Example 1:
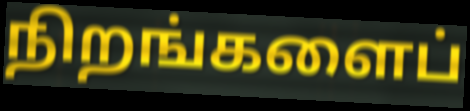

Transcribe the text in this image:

நிறங்களைப்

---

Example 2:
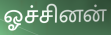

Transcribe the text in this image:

ஓச்சினன்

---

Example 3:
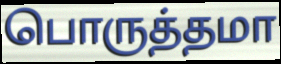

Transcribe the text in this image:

பொருத்தமா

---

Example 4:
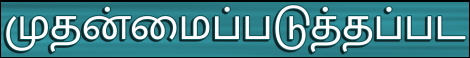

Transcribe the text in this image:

முதன்மைப்படுத்தப்பட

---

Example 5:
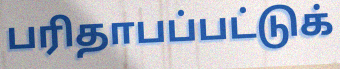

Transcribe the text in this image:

பரிதாபப்பட்டுக்